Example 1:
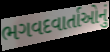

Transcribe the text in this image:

ભગવદવાર્તાઓનું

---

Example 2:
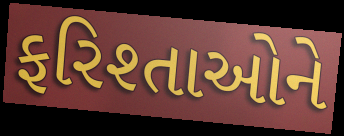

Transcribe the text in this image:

ફરિશ્તાઓને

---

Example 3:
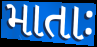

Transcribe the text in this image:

માતાઃ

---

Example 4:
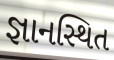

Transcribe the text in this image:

જ્ઞાનસ્થિત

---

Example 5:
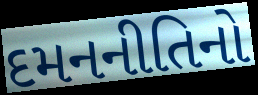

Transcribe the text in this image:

દમનનીતિનો